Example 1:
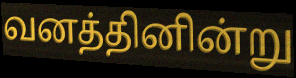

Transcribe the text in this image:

வனத்தினின்று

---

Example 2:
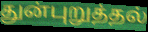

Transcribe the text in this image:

துன்புறுத்தல்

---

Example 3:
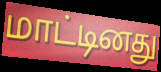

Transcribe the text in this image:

மாட்டினது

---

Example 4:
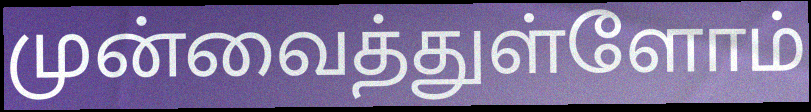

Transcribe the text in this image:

முன்வைத்துள்ளோம்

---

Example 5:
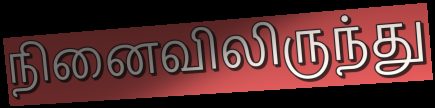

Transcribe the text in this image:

நினைவிலிருந்து